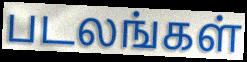
படலங்கள்